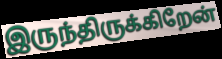
இருந்திருக்கிறேன்